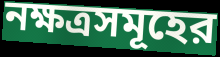
নক্ষত্রসমূহের